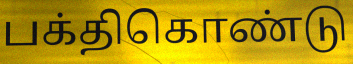
பக்திகொண்டு